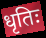
धृतिः